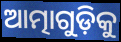
ଆତ୍ମାଗୁଡ଼ିକୁ